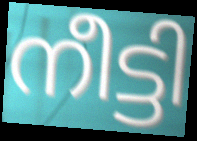
നീട്ടി